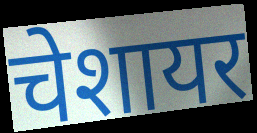
चेशायर